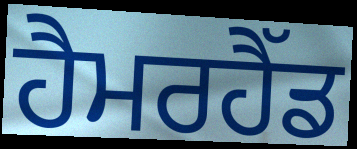
ਹੈਮਰਹੈੱਡ